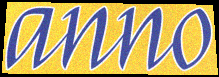
anno